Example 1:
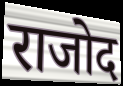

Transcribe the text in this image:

राजोद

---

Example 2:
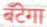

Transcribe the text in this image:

बँटेगा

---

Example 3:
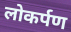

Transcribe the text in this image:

लोकर्पण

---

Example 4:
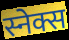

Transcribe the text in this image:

स्नेक्स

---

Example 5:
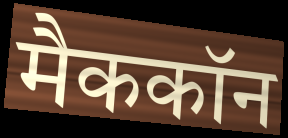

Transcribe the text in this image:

मैककॉन